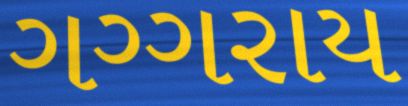
ગગ્ગરાય